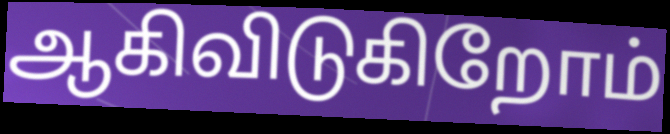
ஆகிவிடுகிறோம்